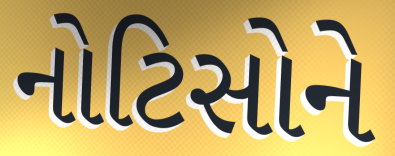
નોટિસોને